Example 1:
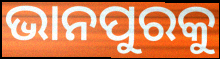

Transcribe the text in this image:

ଭାନପୁରକୁ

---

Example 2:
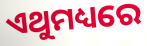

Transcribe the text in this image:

ଏଥୁମଧ୍ୟରେ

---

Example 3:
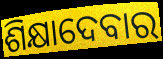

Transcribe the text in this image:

ଶିକ୍ଷାଦେବାର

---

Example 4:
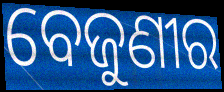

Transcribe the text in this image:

ବେଜୁଣୀର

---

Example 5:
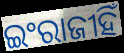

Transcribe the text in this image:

ଇଂରାଜୀହିଁ